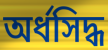
অর্ধসিদ্ধ